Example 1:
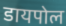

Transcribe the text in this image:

डायपोल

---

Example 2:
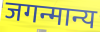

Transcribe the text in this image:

जगन्मान्य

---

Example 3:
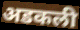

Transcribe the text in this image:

अडकली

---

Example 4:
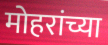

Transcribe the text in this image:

मोहरांच्या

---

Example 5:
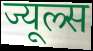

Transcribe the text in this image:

ज्यूल्स